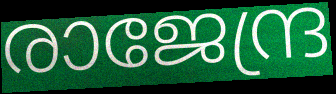
രാജേന്ദ്ര